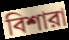
বিশারা